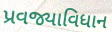
પ્રવજ્યાવિધાન